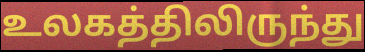
உலகத்திலிருந்து